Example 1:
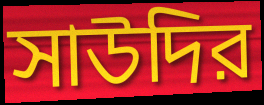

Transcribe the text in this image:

সাউদির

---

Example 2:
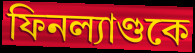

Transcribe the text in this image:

ফিনল্যাণ্ডকে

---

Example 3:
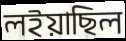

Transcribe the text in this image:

লইয়াছিল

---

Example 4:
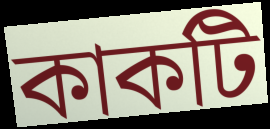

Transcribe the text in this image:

কাকটি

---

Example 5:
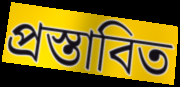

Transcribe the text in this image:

প্রস্তাবিত